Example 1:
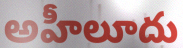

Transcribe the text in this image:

అహీలూదు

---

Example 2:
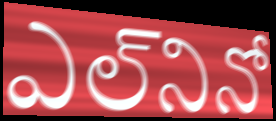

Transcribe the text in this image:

ఎల్‌నినో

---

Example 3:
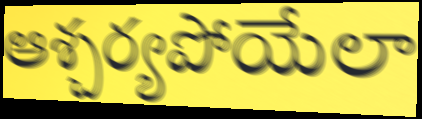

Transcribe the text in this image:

ఆశ్చర్యపోయేలా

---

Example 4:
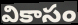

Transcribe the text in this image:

వికాసం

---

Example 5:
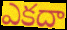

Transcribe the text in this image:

ఎకదా